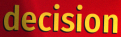
decision